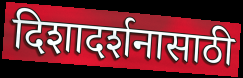
दिशादर्शनासाठी